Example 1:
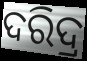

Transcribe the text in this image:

ଦରିଦ୍ର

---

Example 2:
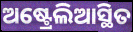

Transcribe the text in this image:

ଅଷ୍ଟ୍ରେଲିଆସ୍ଥିତ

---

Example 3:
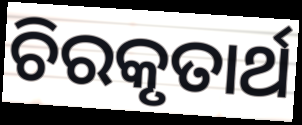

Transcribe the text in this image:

ଚିରକୃତାର୍ଥ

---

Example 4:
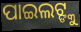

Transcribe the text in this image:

ପାଇଲଟ୍ଙ୍କୁ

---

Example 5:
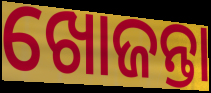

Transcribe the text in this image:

ଖୋଜନ୍ତା